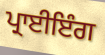
ਪ੍ਰਾਈਇੰਗ